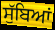
ਸੁੱਬਿਆਂ